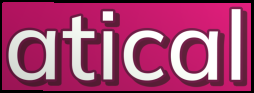
atical